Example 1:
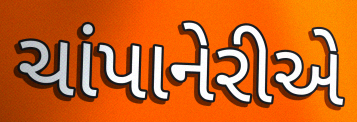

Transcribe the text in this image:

ચાંપાનેરીએ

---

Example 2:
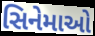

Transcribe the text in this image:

સિનેમાઓ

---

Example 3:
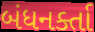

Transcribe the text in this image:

બંધનર્ક્તા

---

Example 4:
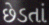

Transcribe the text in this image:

છેડતાં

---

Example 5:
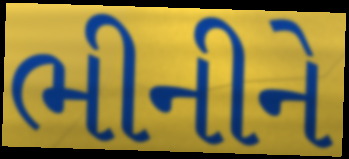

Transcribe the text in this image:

ભીનીને